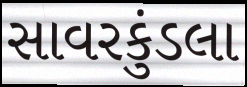
સાવરકુંડલા